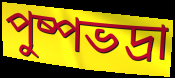
পুষ্পভদ্ৰা